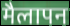
मैलापन